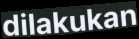
dilakukan